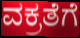
ವಕ್ರತೆಗೆ